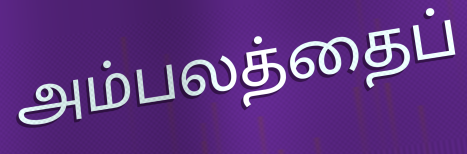
அம்பலத்தைப்